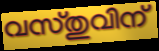
വസ്തുവിന്